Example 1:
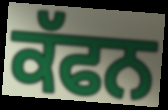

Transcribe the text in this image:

ਕੱਫਨ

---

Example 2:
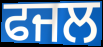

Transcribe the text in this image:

ਫਜਲ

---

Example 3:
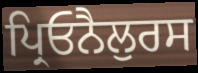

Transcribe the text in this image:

ਪ੍ਰਿਓਨੈਲੁਰਸ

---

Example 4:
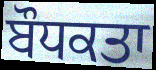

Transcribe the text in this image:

ਬੌਧਕਤਾ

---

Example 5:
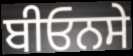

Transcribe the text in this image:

ਬੀਓਨਸੇ